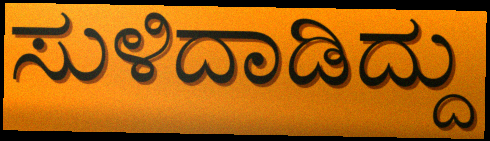
ಸುಳಿದಾಡಿದ್ದು